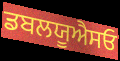
ਡਬਲਯੂਐਸਓ